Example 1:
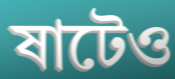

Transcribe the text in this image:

ষাটেও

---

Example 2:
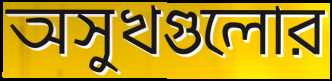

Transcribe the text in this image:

অসুখগুলোর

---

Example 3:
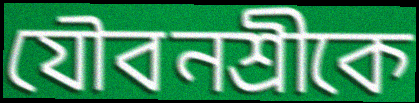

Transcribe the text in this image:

যৌবনশ্রীকে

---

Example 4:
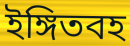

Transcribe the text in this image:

ইঙ্গিতবহ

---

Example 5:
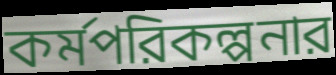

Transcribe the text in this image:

কর্মপরিকল্পনার